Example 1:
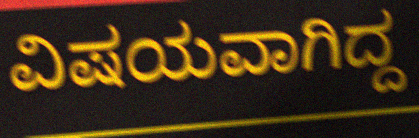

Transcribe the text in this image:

ವಿಷಯವಾಗಿದ್ದ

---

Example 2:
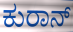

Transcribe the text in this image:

ಕುರಾನ್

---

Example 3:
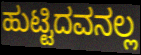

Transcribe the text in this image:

ಹುಟ್ಟಿದವನಲ್ಲ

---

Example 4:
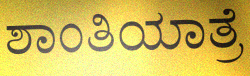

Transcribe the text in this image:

ಶಾಂತಿಯಾತ್ರೆ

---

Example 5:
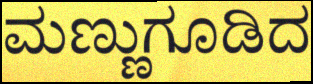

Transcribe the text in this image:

ಮಣ್ಣುಗೂಡಿದ